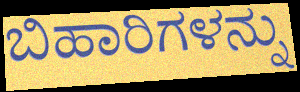
ಬಿಹಾರಿಗಳನ್ನು